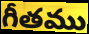
గీతము